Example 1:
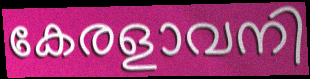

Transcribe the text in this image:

കേരളാവനി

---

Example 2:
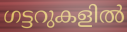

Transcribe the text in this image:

ഗട്ടറുകളിൽ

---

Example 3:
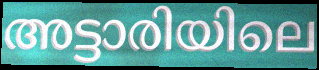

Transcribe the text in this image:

അട്ടാരിയിലെ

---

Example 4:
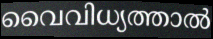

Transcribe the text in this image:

വൈവിധ്യത്താൽ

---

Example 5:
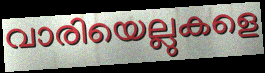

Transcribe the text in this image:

വാരിയെല്ലുകളെ